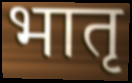
भातृ